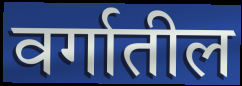
वर्गातील